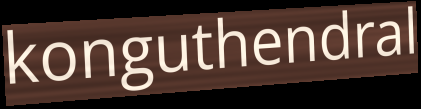
konguthendral